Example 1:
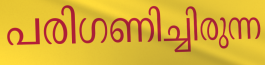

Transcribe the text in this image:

പരിഗണിച്ചിരുന്ന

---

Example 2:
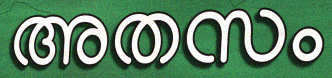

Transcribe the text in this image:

അതസം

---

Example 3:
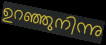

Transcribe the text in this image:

ഉറഞ്ഞുനിന്നു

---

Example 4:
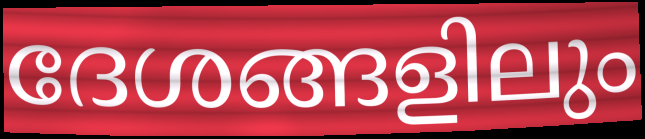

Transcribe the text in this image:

ദേശങ്ങളിലും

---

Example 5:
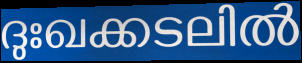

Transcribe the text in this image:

ദുഃഖക്കടലിൽ